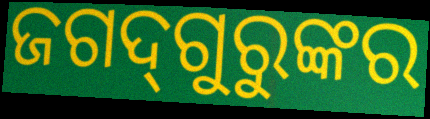
ଜଗଦ୍‌ଗୁରୁଙ୍କର